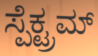
ಸ್ಪೆಕ್ಟ್ರಮ್